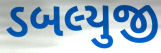
ડબલ્યુજી